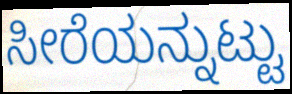
ಸೀರೆಯನ್ನುಟ್ಟು